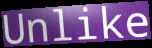
Unlike